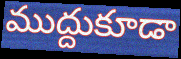
ముద్దుకూడా